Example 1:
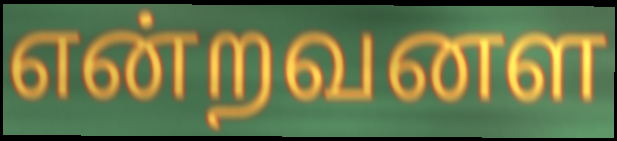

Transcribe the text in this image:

என்றவனள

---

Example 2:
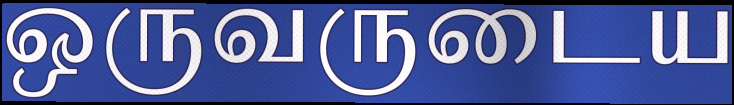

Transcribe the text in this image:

ஒருவருடைய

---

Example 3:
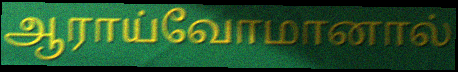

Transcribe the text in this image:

ஆராய்வோமானால்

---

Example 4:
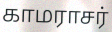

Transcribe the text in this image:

காமராசர்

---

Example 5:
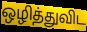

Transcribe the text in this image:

ஒழித்துவிட